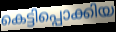
കെട്ടിപ്പൊക്കിയ